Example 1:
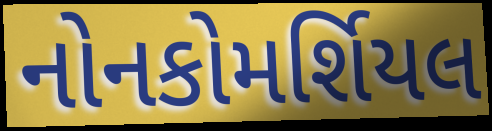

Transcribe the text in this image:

નોનકોમર્શિયલ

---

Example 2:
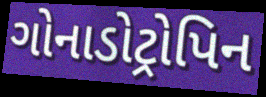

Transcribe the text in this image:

ગોનાડોટ્રોપિન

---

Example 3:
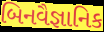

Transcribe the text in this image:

બિનવૈજ્ઞાનિક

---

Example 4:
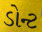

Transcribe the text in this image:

ડોન્ટ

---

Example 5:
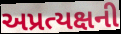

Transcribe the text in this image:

અપ્રત્યક્ષની